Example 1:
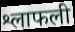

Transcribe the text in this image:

श्लाफली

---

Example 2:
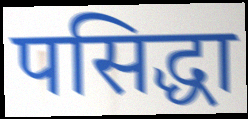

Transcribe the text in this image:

पसिद्धा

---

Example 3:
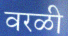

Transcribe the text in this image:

वरळी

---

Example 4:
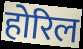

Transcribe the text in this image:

होरिल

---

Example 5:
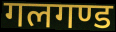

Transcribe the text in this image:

गलगण्ड